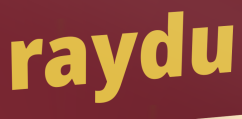
raydu